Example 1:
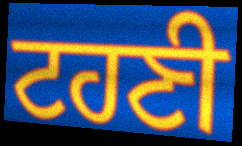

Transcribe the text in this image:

ਟਹਣੀ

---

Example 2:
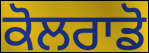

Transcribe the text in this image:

ਕੋਲਰਾਡੋ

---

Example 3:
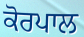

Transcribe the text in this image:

ਕੋਰਪਾਲ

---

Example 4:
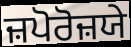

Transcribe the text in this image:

ਜ਼ਪੋਰੋਜ਼ਯੇ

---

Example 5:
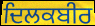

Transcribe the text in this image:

ਦਿਲਕਬੀਰ